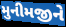
મુનીમજીને